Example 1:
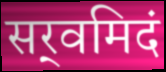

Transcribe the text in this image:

सर्वमिदं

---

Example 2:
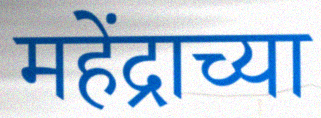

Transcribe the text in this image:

महेंद्राच्या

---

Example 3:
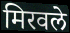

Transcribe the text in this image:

मिरवले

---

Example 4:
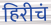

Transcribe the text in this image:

हिरीचं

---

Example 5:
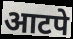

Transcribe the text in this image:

आटपे